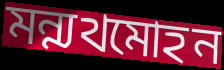
মন্মথমোহন